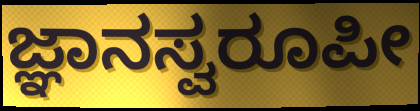
ಜ್ಞಾನಸ್ವರೂಪೀ